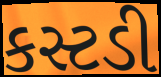
કસ્ટડી